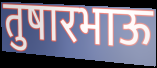
तुषारभाऊ